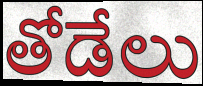
తోడేలు